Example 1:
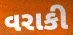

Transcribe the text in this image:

વરાકી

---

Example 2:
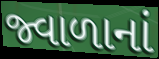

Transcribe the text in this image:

જ્વાળાનાં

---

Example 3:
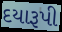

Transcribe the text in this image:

દયારૂપી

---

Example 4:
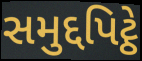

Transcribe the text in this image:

સમુદ્દપિટ્ઠે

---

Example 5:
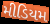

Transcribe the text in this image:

મીડિયમ